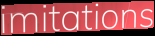
imitations